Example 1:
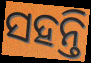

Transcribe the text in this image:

ସହନ୍ତି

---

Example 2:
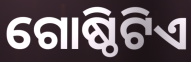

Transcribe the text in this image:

ଗୋଷ୍ଠିଟିଏ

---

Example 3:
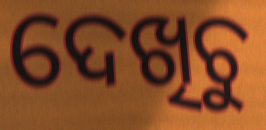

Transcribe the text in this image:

ଦେଖିଚୁ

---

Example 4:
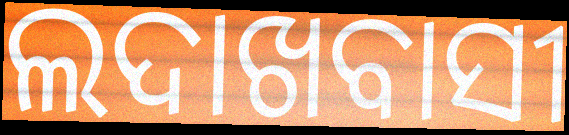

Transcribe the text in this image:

ଲଦାଖବାସୀ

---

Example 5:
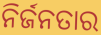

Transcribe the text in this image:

ନିର୍ଜନତାର